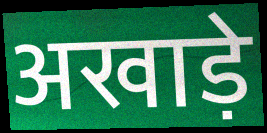
अखाड़े